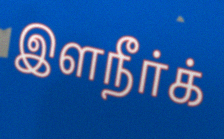
இளநீர்க்